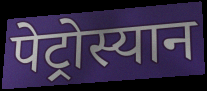
पेट्रोस्यान